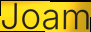
Joam